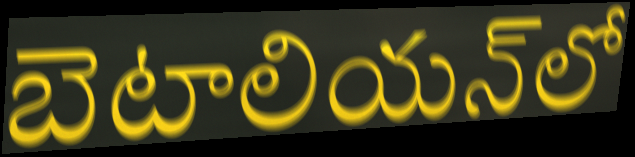
బెటాలియన్‌లో